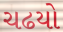
ચઢયો